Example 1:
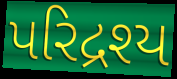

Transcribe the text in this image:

પરિદ્રશ્ય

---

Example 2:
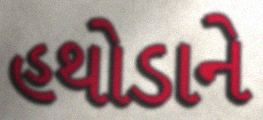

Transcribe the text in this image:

હથોડાને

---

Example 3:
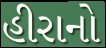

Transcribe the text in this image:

હીરાનો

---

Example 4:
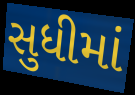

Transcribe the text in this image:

સુધીમાં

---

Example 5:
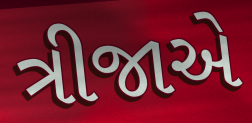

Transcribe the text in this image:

ત્રીજાએ